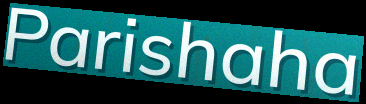
Parishaha